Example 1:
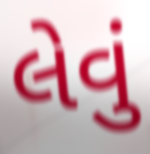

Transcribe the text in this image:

લેવું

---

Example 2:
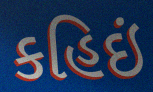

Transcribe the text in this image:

કહિઇં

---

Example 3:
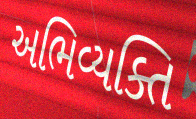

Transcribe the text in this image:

અભિવ્યક્તિ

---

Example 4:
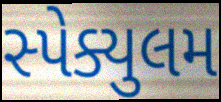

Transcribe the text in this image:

સ્પેક્યુલમ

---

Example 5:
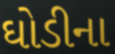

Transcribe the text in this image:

ઘોડીના